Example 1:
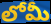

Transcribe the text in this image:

లోమీ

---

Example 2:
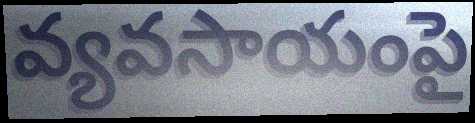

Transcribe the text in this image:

వ్యవసాయంపై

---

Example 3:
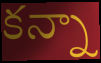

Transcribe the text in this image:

కన్నా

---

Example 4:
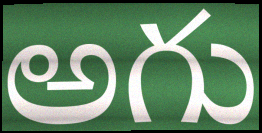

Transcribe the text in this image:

అగు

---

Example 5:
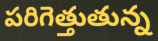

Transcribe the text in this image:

పరిగెత్తుతున్న